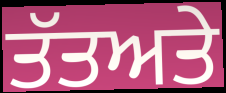
ਤੱਤਅਤੇ